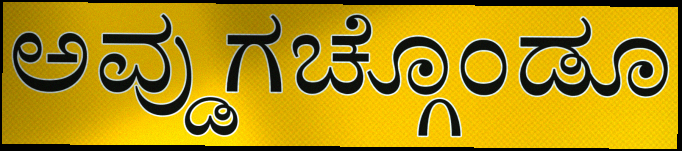
ಅವ್ಡುಗಚ್ಗೊಂಡೂ